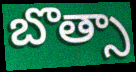
బొత్సా